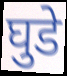
घुडे